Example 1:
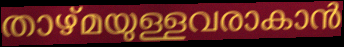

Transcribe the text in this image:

താഴ്മയുള്ളവരാകാൻ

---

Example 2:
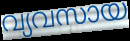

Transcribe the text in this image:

വ്യവസായ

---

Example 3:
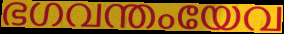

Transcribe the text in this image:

ഭഗവന്തംയേവ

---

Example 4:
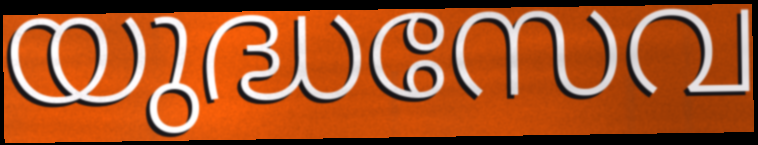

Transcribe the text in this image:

യുദ്ധസേവ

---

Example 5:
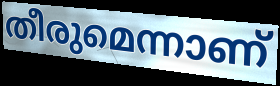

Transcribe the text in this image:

തീരുമെന്നാണ്